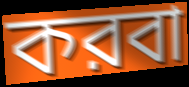
করবা